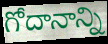
గోదానాన్ని